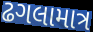
ઢગલામાત્ર